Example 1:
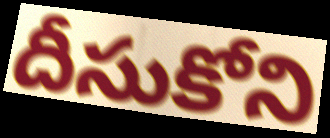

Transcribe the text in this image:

దీసుకోని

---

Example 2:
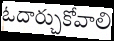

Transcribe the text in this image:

ఓదార్చుకోవాలి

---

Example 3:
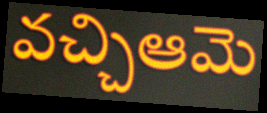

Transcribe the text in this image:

వచ్చిఆమె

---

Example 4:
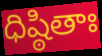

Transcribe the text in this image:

ధిష్ఠితాః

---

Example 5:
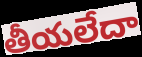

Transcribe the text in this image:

తీయలేదా